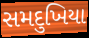
સમદુખિયા